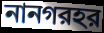
নানগরহর